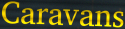
Caravans